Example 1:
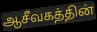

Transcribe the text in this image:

ஆசீவகத்தின்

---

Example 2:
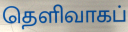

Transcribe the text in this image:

தெளிவாகப்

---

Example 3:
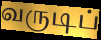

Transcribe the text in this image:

வருடிப்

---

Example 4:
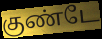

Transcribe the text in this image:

குண்டே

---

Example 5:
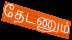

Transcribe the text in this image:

தேடணும்